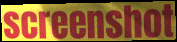
screenshot